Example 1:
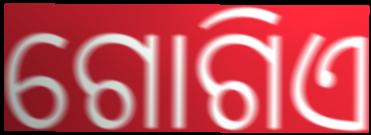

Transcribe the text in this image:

ଗୋଗିଏ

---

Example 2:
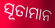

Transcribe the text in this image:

ସୂତାମାନ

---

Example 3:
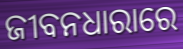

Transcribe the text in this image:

ଜୀବନଧାରାରେ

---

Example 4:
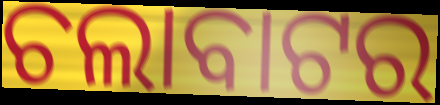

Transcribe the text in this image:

ଚଲାବାଟର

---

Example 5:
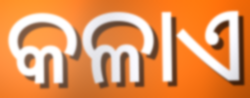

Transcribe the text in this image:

କଳାଏ